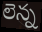
లెన్న